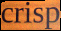
crisp